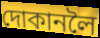
দোকানলৈ